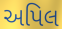
અપિલ